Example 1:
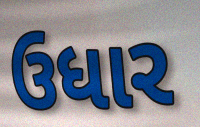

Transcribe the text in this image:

ઉધાર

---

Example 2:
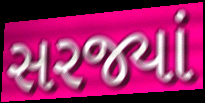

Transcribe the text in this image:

સરજ્યાં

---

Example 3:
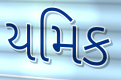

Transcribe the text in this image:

યમિક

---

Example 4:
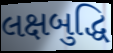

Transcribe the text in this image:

લક્ષબુદ્ધિ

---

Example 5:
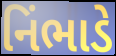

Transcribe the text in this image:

નિંભાડે